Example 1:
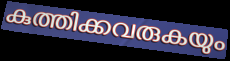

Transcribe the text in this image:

കുത്തിക്കവരുകയും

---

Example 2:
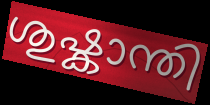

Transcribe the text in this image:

ശുഷ്കാന്തി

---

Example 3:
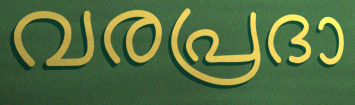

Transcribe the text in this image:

വരപ്രദാ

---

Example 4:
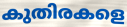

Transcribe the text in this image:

കുതിരകളെ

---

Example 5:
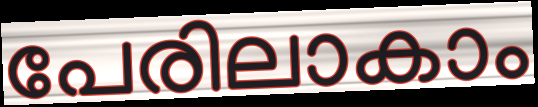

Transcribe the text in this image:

പേരിലാകാം